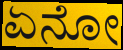
ಏನೋ